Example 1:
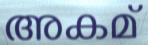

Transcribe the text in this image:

അകമ്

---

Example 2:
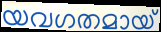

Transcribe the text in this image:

യവഗതമായ്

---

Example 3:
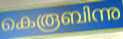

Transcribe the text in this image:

കെരൂബിന്നു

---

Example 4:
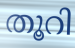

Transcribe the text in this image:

തൂറി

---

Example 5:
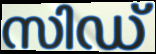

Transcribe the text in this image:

സിഡ്